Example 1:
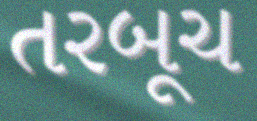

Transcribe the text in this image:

તરબૂચ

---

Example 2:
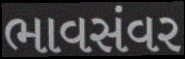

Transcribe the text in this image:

ભાવસંવર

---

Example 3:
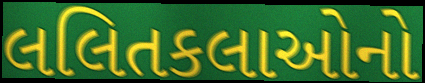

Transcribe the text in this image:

લલિતકલાઓનો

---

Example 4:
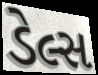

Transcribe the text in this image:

ડેલ્સ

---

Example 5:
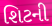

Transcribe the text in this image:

શિટની